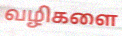
வழிகளை